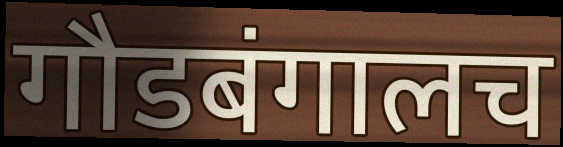
गौडबंगालच